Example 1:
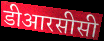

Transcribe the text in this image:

डीआरसीसी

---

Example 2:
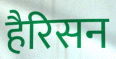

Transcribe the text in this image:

हैरिसन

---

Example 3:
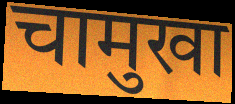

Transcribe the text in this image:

चामुखा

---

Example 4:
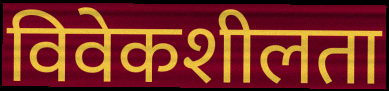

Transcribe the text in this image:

विवेकशीलता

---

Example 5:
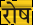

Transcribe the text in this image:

रोष